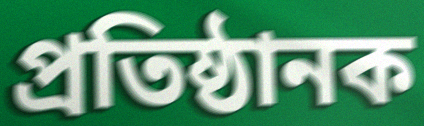
প্ৰতিষ্ঠানক